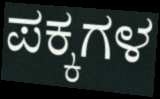
ಪಕ್ಕಗಳ